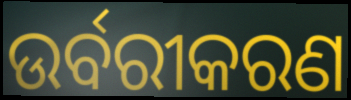
ଉର୍ବରୀକରଣ